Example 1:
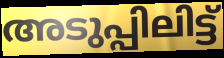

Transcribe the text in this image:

അടുപ്പിലിട്ട്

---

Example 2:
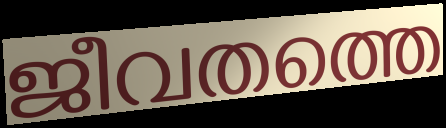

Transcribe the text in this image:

ജീവതത്തെ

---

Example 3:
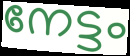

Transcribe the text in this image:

നേട്ടം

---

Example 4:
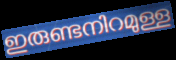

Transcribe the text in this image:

ഇരുണ്ടനിറമുള്ള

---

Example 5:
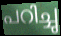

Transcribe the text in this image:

പറിച്ചു